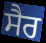
ਸੈਰ